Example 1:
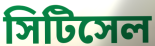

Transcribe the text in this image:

সিটিসেল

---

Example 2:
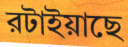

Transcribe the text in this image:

রটাইয়াছে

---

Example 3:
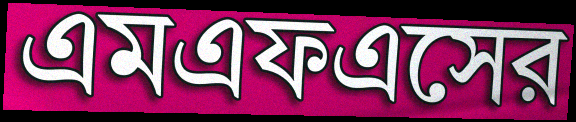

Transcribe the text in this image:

এমএফএসের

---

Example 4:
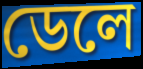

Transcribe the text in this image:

ডেলে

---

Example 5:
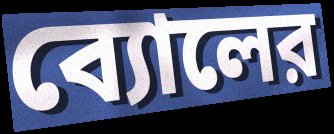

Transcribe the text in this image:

ব্যোলের